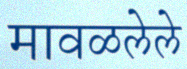
मावळलेले